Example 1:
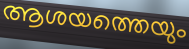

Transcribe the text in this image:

ആശയത്തെയും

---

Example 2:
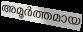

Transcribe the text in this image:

അമൂർത്തമായ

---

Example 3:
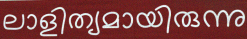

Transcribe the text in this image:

ലാളിത്യമായിരുന്നു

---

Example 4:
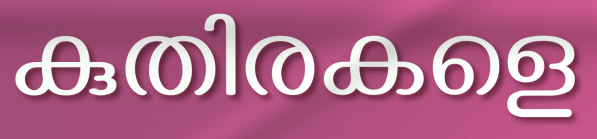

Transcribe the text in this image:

കുതിരകളെ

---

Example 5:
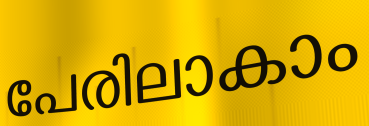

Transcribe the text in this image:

പേരിലാകാം